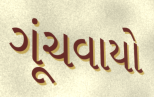
ગૂંચવાયો